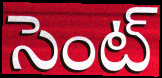
సెంట్